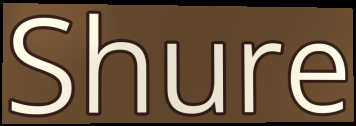
Shure